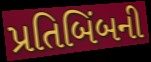
પ્રતિબિંબની